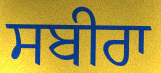
ਸਬੀਰਾ